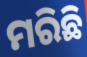
ମରିଛି